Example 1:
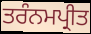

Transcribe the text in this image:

ਤਰੰਨਮਪ੍ਰੀਤ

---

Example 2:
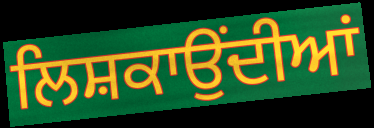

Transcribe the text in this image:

ਲਿਸ਼ਕਾਉਂਦੀਆਂ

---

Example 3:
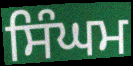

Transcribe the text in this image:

ਸਿੰਘਮ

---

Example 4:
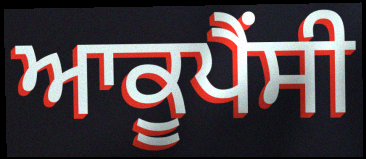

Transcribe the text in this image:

ਆਕੂਪੈਂਸੀ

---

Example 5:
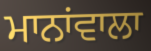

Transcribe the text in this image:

ਮਾਨਾਂਵਾਲਾ